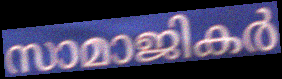
സാമാജികർ